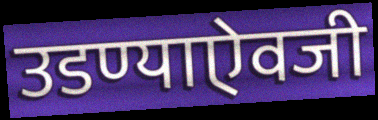
उडण्याऐवजी